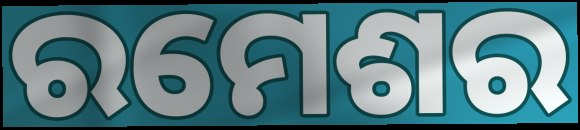
ରମେଶର